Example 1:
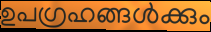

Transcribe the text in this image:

ഉപഗ്രഹങ്ങൾക്കും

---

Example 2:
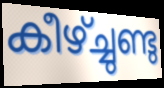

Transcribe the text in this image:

കീഴ്ച്ചുണ്ടു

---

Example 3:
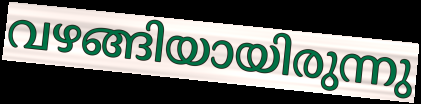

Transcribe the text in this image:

വഴങ്ങിയായിരുന്നു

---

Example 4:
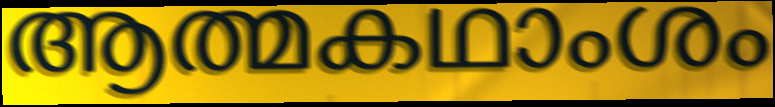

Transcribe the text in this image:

ആത്മകഥാംശം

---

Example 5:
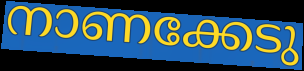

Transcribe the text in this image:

നാണക്കേടു